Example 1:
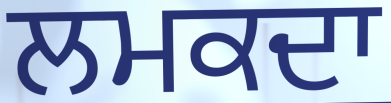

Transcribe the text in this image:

ਲਮਕਦਾ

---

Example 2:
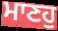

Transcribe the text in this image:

ਮਾਣਹੁ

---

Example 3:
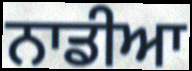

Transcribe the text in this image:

ਨਾਡੀਆ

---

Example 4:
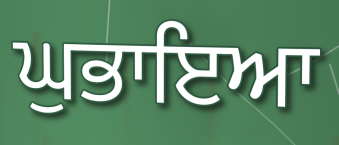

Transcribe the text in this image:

ਘੁਭਾਇਆ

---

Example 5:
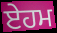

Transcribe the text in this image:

ਏਹਮ